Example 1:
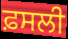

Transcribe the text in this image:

ਫ਼ਸਲੀ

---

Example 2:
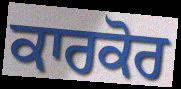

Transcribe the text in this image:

ਕਾਰਕੋਰ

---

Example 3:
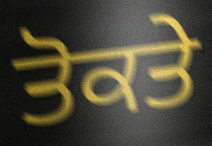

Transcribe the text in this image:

ਤੋਕਤੇ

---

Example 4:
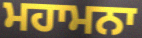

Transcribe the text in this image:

ਮਹਾਮਨਾ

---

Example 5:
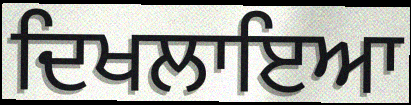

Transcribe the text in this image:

ਦਿਖਲਾਇਆ